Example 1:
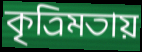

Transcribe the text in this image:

কৃত্রিমতায়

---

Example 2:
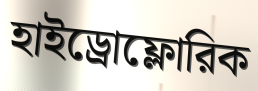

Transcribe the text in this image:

হাইড্রোফ্লোরিক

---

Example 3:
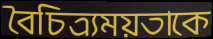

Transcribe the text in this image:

বৈচিত্র্যময়তাকে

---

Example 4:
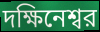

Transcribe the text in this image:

দক্ষিনেশ্বর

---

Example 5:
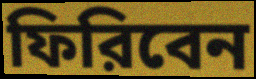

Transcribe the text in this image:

ফিরিবেন